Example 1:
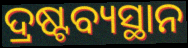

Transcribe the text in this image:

ଦ୍ରଷ୍ଟବ୍ୟସ୍ଥାନ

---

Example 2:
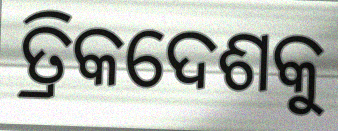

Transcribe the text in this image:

ତ୍ରିକଦେଶକୁ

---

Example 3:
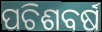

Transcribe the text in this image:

ପଚିଶବର୍ଷ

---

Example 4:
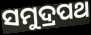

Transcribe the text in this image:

ସମୁଦ୍ରପଥ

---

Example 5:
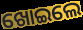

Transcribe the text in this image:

ଖୋଇଲେ